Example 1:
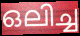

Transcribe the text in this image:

ഒലിച്ച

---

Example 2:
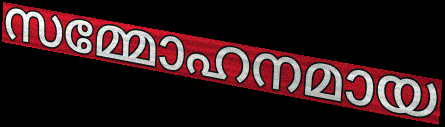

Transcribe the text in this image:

സമ്മോഹനമായ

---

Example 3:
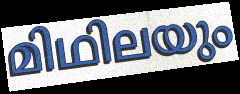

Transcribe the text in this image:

മിഥിലയും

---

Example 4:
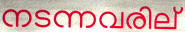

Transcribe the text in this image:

നടന്നവരില്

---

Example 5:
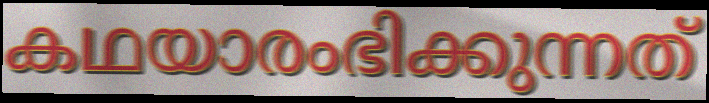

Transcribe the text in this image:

കഥയാരംഭിക്കുന്നത്